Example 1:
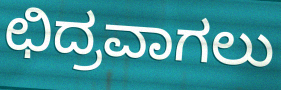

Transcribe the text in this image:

ಛಿದ್ರವಾಗಲು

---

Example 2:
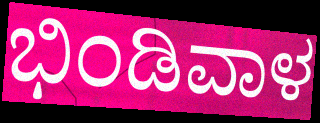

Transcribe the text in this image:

ಭಿಂಡಿವಾಳ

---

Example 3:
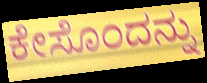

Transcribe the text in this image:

ಕೇಸೊಂದನ್ನು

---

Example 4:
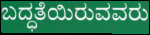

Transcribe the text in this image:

ಬದ್ಧತೆಯಿರುವವರು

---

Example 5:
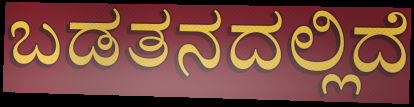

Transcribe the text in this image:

ಬಡತನದಲ್ಲಿದೆ